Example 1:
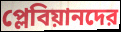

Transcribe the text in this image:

প্লেবিয়ানদের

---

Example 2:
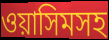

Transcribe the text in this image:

ওয়াসিমসহ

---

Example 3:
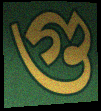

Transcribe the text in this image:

গু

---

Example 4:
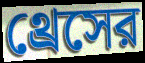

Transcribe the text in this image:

থ্রেসের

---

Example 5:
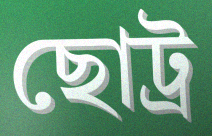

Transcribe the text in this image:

ছোট্র